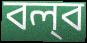
বল্‌ব